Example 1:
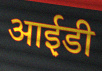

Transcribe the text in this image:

आई़डी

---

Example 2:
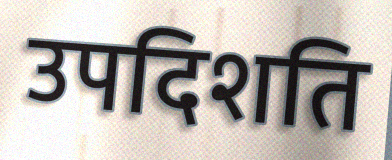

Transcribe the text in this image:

उपदिशति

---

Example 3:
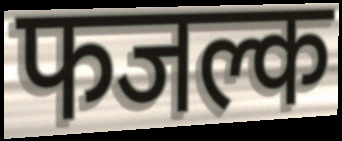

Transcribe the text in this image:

फजल्क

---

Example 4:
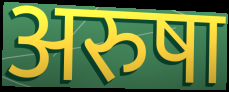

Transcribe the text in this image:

अरुषा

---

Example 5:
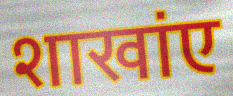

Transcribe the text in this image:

शाखांए